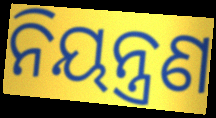
ନିୟନ୍ତ୍ରଣ